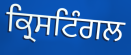
ਕ੍ਰਿਸਟਿੰਗਲ